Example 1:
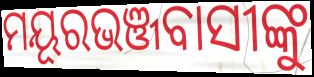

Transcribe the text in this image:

ମୟୂରଭଞ୍ଜବାସୀଙ୍କୁ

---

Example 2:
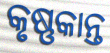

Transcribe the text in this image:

କୃଷ୍ଣକାନ୍ତ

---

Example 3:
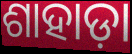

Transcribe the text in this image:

ଶାହାଡ଼ା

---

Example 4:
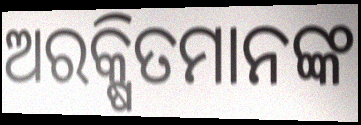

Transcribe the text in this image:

ଅରକ୍ଷିତମାନଙ୍କ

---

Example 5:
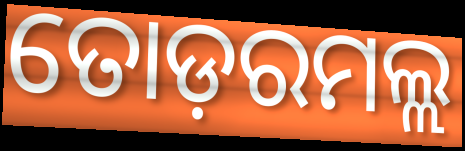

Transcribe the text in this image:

ତୋଡ଼ରମଲ୍ଲ